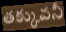
తక్కువనీ